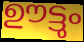
ഊട്ടും